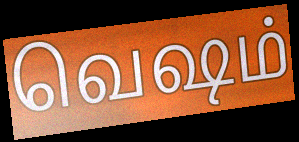
வெஷம்